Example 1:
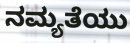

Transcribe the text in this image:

ನಮ್ಯತೆಯು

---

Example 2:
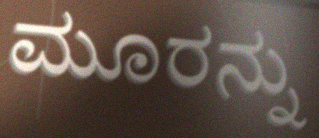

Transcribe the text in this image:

ಮೂರನ್ನು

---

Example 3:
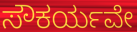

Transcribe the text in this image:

ಸೌಕರ್ಯವೇ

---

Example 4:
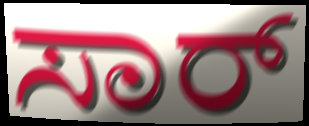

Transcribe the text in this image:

ಸಾರ್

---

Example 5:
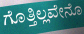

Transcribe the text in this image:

ಗೊತ್ತಿಲ್ಲವೇನೊ